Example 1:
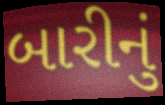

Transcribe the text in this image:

બારીનું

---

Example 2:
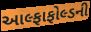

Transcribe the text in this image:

આલ્ફાફોલ્ડની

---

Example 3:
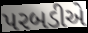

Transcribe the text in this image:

પરબડીએ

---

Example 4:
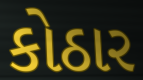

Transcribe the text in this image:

કોઠાર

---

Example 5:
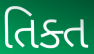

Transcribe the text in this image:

તિક્ત